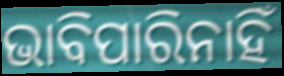
ଭାବିପାରିନାହିଁ